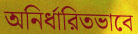
অনির্ধারিতভাবে